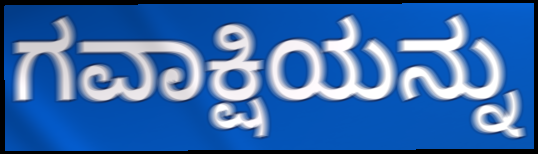
ಗವಾಕ್ಷಿಯನ್ನು